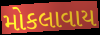
મોકલાવાય